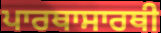
ਪਾਰਥਾਸਾਰਥੀ